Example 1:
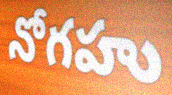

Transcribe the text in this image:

నోగహు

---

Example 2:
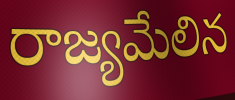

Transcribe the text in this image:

రాజ్యమేలిన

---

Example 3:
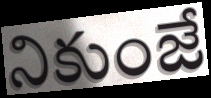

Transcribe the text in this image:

నికుంజే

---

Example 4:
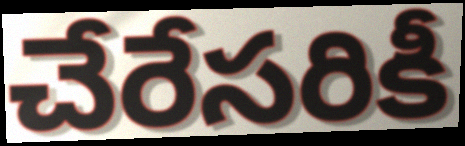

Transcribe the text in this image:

చేరేసరికీ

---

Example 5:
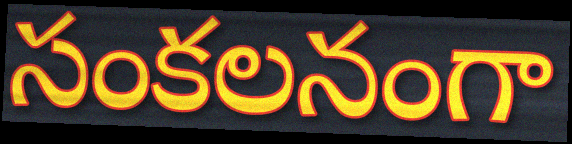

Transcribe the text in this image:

సంకలనంగా